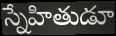
స్నేహితుడూ